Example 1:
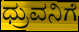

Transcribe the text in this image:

ಧ್ರುವನಿಗೆ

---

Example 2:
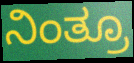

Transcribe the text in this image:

ನಿಂತ್ರೂ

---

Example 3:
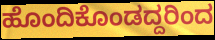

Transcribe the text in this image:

ಹೊಂದಿಕೊಂಡದ್ದರಿಂದ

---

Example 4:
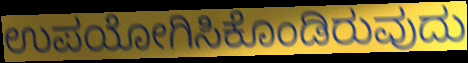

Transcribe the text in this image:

ಉಪಯೋಗಿಸಿಕೊಂಡಿರುವುದು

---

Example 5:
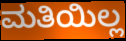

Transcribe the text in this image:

ಮತಿಯಿಲ್ಲ